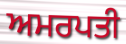
ਅਮਰਪਤੀ